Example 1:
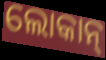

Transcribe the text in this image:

ଲୋକାନ୍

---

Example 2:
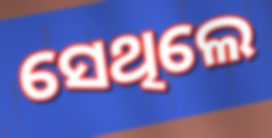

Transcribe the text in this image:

ସେଥିଲେ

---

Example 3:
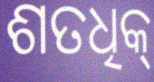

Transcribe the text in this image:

ଶତଧିକ୍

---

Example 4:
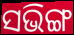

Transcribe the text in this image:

ସଭିଙ୍ଗ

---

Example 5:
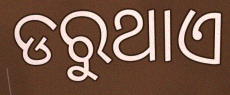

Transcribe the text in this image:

ଡରୁଥାଏ